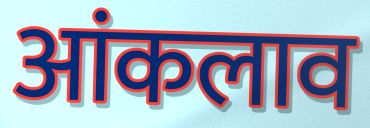
आंकलाव